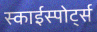
स्काईस्पोर्ट्स